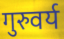
गुरुवर्य